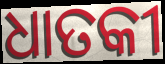
ଧାତକୀ